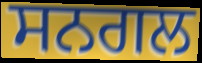
ਸਨਗਲ